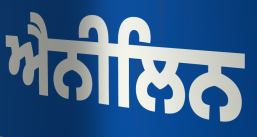
ਐਨੀਲਿਨ